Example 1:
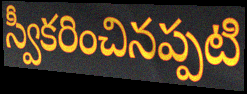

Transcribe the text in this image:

స్వీకరించినప్పటి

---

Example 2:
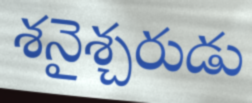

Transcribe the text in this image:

శనైశ్చరుడు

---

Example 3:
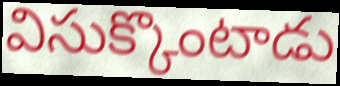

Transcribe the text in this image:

విసుక్కొంటాడు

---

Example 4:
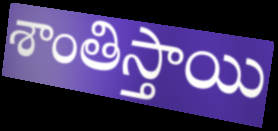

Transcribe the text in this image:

శాంతిస్తాయి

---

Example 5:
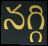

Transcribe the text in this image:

నగ్గి